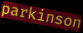
parkinson